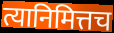
त्यानिमित्तच